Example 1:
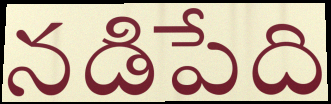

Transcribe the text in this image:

నడిపేది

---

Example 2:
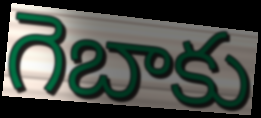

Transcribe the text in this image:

గెబాకు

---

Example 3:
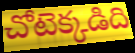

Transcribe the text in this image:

చోటెక్కడిది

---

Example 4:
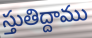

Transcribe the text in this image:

స్తుతిద్దాము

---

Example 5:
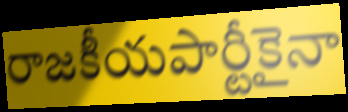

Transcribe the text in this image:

రాజకీయపార్టీకైనా